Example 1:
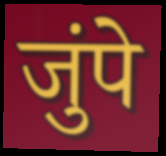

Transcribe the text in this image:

जुंपे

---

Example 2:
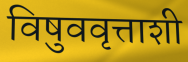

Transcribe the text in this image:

विषुववृत्ताशी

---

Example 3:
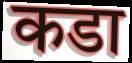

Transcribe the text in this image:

कडा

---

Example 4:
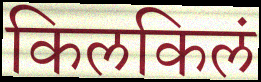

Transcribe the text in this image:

किलकिलं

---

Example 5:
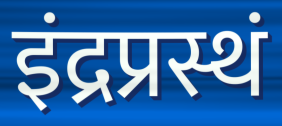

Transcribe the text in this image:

इंद्रप्रस्थं